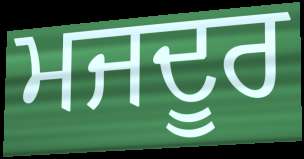
ਮਜਦੂਰ